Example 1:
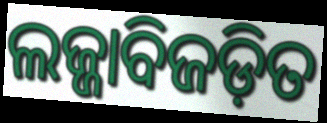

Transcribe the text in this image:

ଲଜ୍ଜାବିଜଡ଼ିତ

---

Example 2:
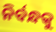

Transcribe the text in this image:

ନିର୍ବନ୍ଧକୁ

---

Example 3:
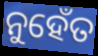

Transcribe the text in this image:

ନୁହେଁତ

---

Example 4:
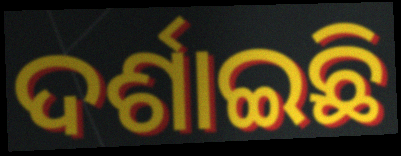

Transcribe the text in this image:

ଦର୍ଶାଇଛି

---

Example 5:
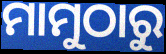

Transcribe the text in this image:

ମାମୁଠାରୁ